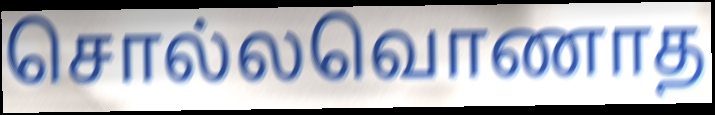
சொல்லவொணாத